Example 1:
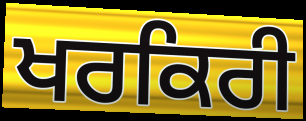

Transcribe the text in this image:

ਖਰਕਿਰੀ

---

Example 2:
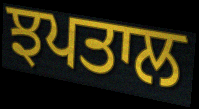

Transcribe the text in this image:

ਝਪਤਾਲ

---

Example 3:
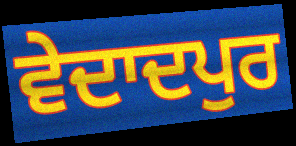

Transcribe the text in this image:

ਵੇਦਾਦਪੁਰ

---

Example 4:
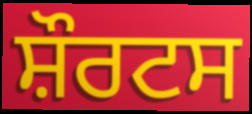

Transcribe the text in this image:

ਸ਼ੌਰਟਸ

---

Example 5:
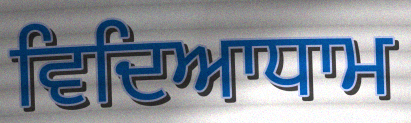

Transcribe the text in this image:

ਵਿਦਿਆਧਾਮ